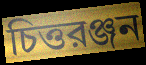
চিত্তরঞ্জন